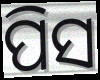
ପିସ